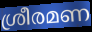
ശ്രീരമണ